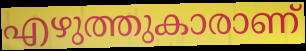
എഴുത്തുകാരാണ്